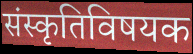
संस्कृतिविषयक